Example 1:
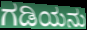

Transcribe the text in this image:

ಗಡಿಯನು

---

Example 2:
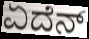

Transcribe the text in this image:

ಏದೆನ್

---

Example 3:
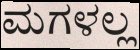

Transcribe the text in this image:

ಮಗಳಲ್ಲ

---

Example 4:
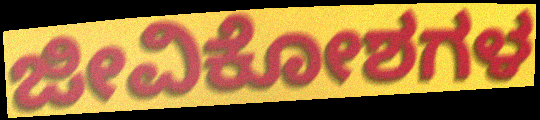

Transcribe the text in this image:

ಜೀವಿಕೋಶಗಳ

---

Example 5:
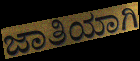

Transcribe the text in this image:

ಜಾತಿಯಾಗಿ